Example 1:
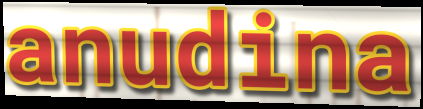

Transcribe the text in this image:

anudina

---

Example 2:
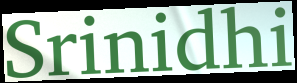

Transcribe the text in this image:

Srinidhi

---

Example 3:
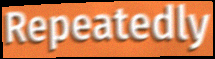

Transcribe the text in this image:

Repeatedly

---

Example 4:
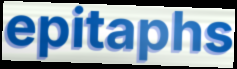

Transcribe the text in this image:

epitaphs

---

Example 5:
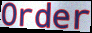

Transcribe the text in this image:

Order